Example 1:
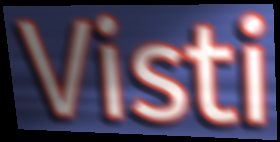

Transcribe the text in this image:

Visti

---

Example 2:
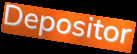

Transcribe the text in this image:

Depositor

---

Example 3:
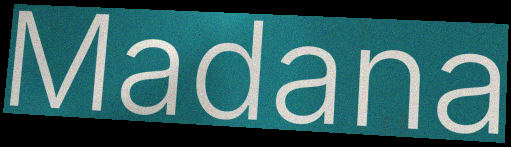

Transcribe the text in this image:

Madana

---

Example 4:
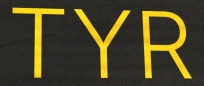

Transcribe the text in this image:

TYR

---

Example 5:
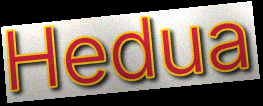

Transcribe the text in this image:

Hedua